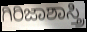
ಗಿರಿಜಾಶಾಸ್ತ್ರಿ